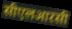
सीएलआरसी